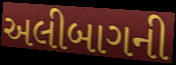
અલીબાગની